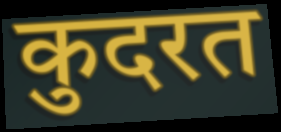
कुदरत